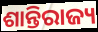
ଶାନ୍ତିରାଜ୍ୟ